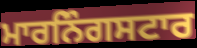
ਮਾਰਨਿੰਗਸਟਾਰ